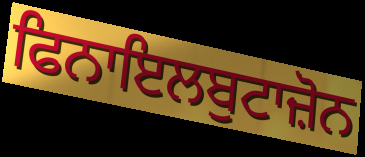
ਫਿਨਾਇਲਬੁਟਾਜ਼ੋਨ